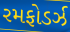
રમફોડર્ઝ